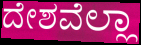
ದೇಶವೆಲ್ಲಾ